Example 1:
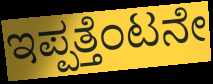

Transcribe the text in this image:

ಇಪ್ಪತ್ತೆಂಟನೇ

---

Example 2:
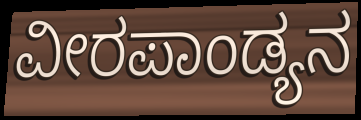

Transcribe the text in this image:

ವೀರಪಾಂಡ್ಯನ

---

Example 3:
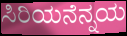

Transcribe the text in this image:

ಸಿರಿಯನೆನ್ನಯ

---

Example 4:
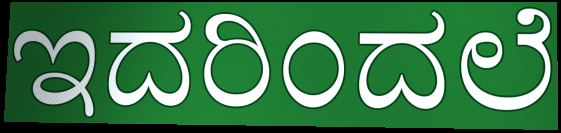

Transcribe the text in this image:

ಇದರಿಂದಲೆ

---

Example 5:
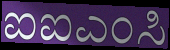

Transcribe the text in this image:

ಐಐಎಂಸಿ